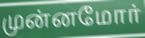
முன்னமோர்